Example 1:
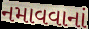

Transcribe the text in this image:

નમાવવાનાં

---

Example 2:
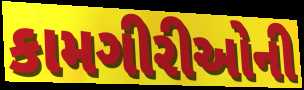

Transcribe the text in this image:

કામગીરીઓની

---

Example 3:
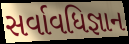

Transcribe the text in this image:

સર્વાવધિજ્ઞાન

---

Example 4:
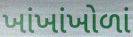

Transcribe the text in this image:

ખાંખાંખોળાં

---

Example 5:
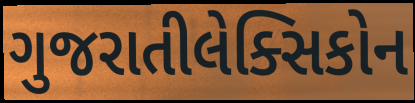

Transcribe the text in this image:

ગુજરાતીલેક્સિકોન